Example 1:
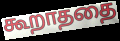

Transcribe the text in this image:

கூறாததை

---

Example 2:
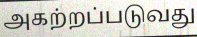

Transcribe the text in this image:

அகற்றப்படுவது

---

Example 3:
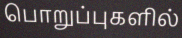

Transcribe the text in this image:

பொறுப்புகளில்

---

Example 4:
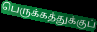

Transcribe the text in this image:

பெருக்கத்துக்குப்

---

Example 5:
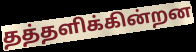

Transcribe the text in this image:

தத்தளிக்கின்றன